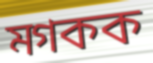
মগকক